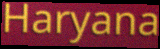
Haryana